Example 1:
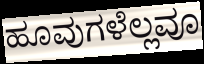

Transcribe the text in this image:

ಹೂವುಗಳೆಲ್ಲವೂ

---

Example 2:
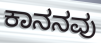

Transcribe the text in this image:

ಕಾನನವು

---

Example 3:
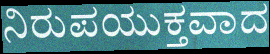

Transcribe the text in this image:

ನಿರುಪಯುಕ್ತವಾದ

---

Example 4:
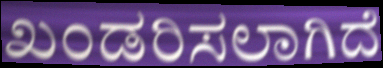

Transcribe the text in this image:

ಖಂಡರಿಸಲಾಗಿದೆ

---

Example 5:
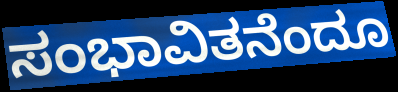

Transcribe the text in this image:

ಸಂಭಾವಿತನೆಂದೂ